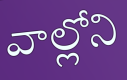
వాల్లోని